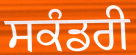
ਸਕੰਡਰੀ